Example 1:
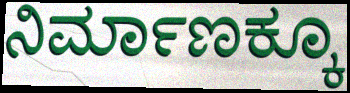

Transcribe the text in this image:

ನಿರ್ಮಾಣಕ್ಕೂ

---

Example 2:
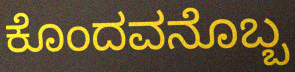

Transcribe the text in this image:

ಕೊಂದವನೊಬ್ಬ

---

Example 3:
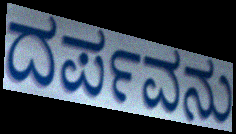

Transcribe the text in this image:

ದರ್ಪವನು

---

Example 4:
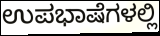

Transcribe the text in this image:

ಉಪಭಾಷೆಗಳಲ್ಲಿ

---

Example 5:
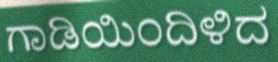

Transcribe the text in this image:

ಗಾಡಿಯಿಂದಿಳಿದ